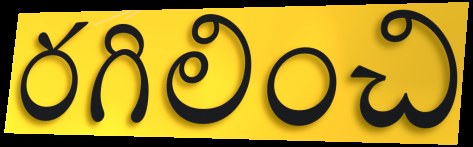
రగిలించి